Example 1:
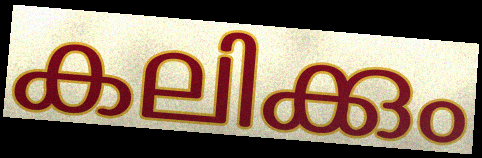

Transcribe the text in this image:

കലിക്കും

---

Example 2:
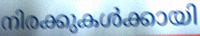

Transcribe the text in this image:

നിരക്കുകൾക്കായി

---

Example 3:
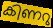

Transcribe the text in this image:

കിണറു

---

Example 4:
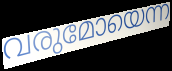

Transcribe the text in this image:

വരുമോയെന്ന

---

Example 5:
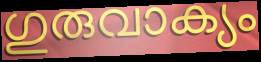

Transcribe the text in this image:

ഗുരുവാക്യം